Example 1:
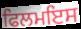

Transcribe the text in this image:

ਫਿਲਮਇਸ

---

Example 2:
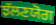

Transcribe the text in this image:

ਝੱਲਣਯੋਗ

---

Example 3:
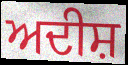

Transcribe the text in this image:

ਅਦੀਸ਼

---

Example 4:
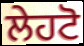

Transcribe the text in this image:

ਲੇਹਟੋ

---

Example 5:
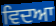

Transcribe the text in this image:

ਵਿਦਆ